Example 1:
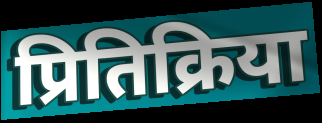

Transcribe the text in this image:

प्रितिक्रिया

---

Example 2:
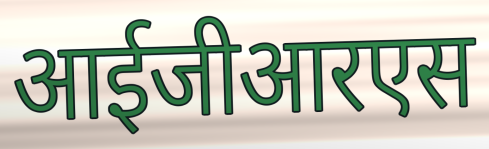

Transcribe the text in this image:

आईजीआरएस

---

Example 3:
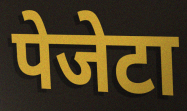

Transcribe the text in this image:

पेजेटा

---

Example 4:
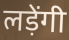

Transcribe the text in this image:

लड़ेंगी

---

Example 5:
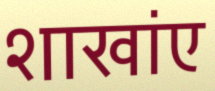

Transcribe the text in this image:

शाखांए